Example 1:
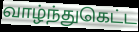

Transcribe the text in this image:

வாழ்ந்துகெட்ட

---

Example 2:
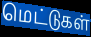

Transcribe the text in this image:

மெட்டுகள்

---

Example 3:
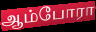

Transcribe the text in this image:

ஆம்போரா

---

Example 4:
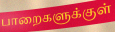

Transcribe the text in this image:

பாறைகளுக்குள்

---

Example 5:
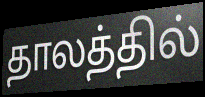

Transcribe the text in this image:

தாலத்தில்